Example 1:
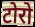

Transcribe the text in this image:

टोरो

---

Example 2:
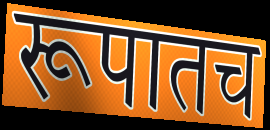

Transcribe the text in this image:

रूपातच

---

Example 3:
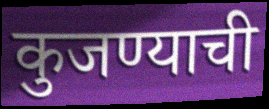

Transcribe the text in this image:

कुजण्याची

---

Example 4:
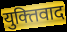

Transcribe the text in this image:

युक्‍तिवाद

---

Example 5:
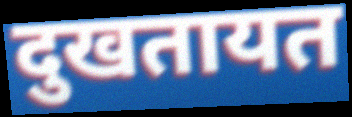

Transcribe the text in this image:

दुखतायत